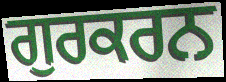
ਗੁਰਕਰਨ